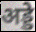
अड्डे